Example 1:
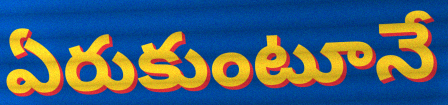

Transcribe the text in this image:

ఏరుకుంటూనే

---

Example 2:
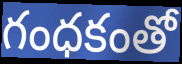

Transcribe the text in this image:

గంధకంతో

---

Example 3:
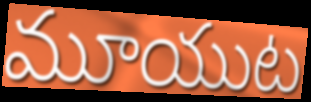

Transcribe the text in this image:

మూయుట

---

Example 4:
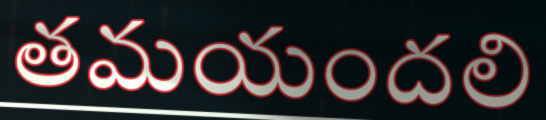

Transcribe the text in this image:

తమయందలి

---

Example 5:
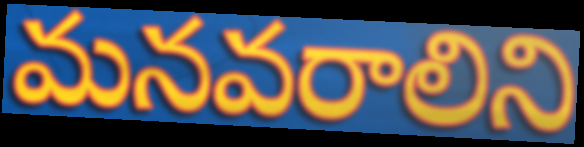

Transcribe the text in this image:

మనవరాలిని